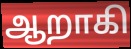
ஆறாகி